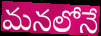
మనలోనే